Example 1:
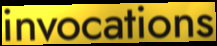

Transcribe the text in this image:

invocations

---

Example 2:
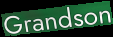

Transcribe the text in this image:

Grandson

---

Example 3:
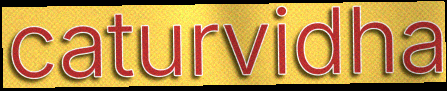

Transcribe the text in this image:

caturvidha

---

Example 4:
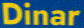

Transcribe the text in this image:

Dinar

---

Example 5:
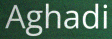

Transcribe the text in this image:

Aghadi